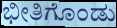
ಭೀತಿಗೊಂಡು